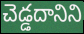
చెడ్డదానిని